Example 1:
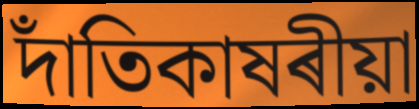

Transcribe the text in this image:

দাঁতিকাষৰীয়া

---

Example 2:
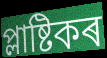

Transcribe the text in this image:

প্লাষ্টিকৰ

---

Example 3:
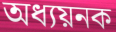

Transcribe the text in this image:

অধ্যয়নক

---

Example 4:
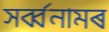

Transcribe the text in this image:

সৰ্ব্বনামৰ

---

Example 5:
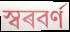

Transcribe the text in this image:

স্বৰবৰ্ণ